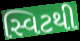
સ્વિટથી